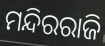
ମନ୍ଦିରରାଜି